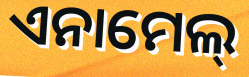
ଏନାମେଲ୍